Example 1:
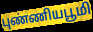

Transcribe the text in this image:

புண்ணியபூமி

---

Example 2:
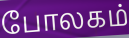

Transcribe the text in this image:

போலகம்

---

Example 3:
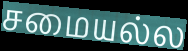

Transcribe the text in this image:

சமையல்ல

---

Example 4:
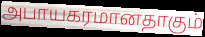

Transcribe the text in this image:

அபாயகரமானதாகும்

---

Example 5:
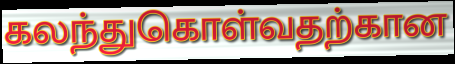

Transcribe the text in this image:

கலந்துகொள்வதற்கான